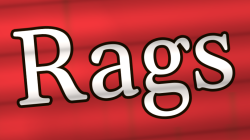
Rags